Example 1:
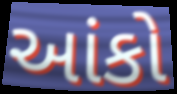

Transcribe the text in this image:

આંકો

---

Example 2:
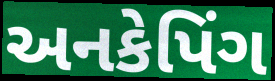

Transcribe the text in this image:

અનકેપિંગ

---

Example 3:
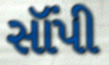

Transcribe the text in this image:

સૉંપી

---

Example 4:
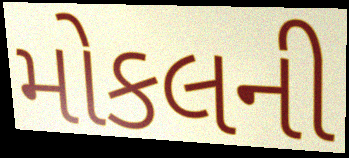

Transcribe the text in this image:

મોકલની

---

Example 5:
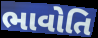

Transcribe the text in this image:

ભાવોતિ